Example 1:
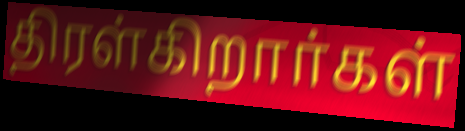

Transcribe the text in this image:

திரள்கிறார்கள்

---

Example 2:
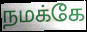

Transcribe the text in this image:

நமக்கே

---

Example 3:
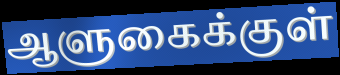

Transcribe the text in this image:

ஆளுகைக்குள்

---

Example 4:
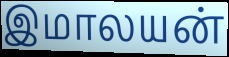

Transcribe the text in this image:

இமாலயன்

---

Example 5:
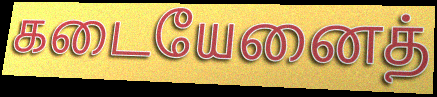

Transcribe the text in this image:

கடையேனைத்